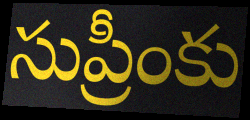
సుప్రీంకు